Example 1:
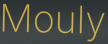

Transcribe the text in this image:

Mouly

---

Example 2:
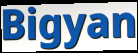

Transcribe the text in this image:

Bigyan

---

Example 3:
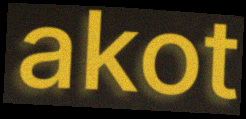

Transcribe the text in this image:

akot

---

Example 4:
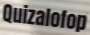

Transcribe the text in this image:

Quizalofop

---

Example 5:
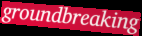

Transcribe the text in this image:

groundbreaking